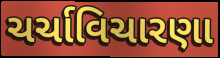
ચર્ચાવિચારણા